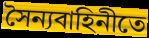
সৈন্যবাহিনীতে